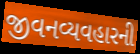
જીવનવ્યવહારની